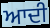
ਆਦੀ